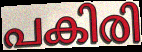
പകിരി